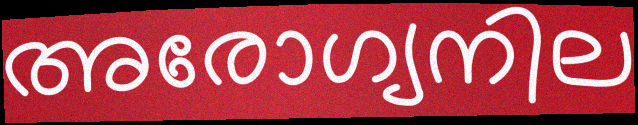
അരോഗ്യനില